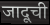
जादूची